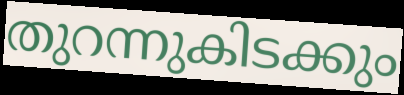
തുറന്നുകിടക്കും